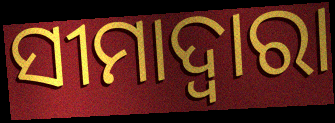
ସୀମାଦ୍ଵାରା